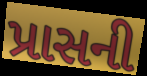
પ્રાસની